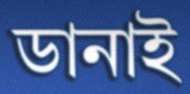
ডানাই